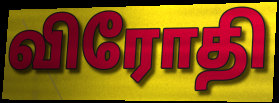
விரோதி